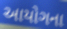
આયોગના